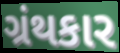
ગ્રંથકાર